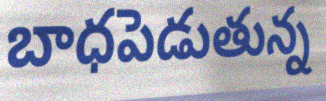
బాధపెడుతున్న